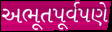
અભૂતપૂર્વપણે